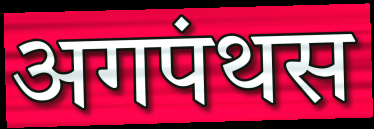
अगपंथस